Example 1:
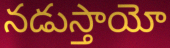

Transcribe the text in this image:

నడుస్తాయో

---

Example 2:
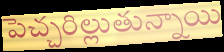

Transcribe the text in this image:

పెచ్చరిల్లుతున్నాయి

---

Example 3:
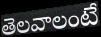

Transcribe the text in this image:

తెలవాలంటే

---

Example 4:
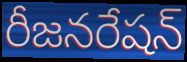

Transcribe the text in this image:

రీజనరేషన్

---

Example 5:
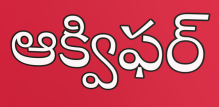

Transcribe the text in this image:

ఆక్విఫర్